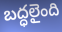
బద్ధలైంది